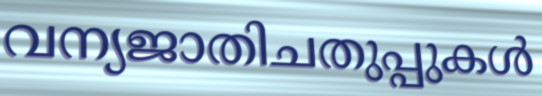
വന്യജാതിചതുപ്പുകൾ